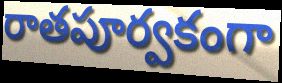
రాతపూర్వకంగా